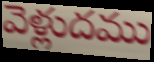
వెళ్లుదము